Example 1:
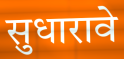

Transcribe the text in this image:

सुधारावे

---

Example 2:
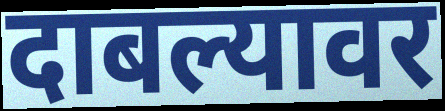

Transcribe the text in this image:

दाबल्यावर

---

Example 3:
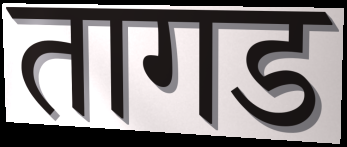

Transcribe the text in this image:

तागड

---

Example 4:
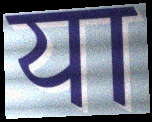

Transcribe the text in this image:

या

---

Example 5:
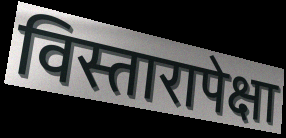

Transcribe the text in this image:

विस्तारापेक्षा